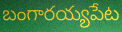
బంగారయ్యపేట